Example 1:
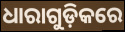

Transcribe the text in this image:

ଧାରାଗୁଡ଼ିକରେ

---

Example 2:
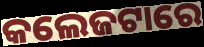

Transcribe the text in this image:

କଲେଜଟାରେ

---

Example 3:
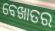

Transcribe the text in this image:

ବେଖାତର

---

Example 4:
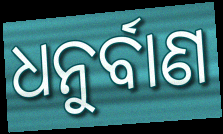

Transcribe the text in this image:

ଧନୁର୍ବାଣ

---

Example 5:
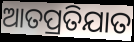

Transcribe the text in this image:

ଆତପ୍ରତିଯାତ